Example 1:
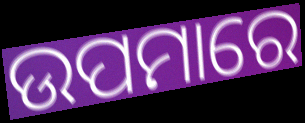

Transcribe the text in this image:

ଉପମାରେ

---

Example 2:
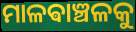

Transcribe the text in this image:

ମାଳଵାଞ୍ଚଳକୁ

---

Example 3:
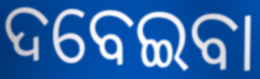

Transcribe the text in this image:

ଦବେଇବା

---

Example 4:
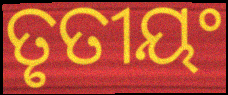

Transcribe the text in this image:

ତୃତୀୟଂ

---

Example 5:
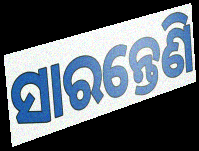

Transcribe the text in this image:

ସାରନ୍ତେଣି